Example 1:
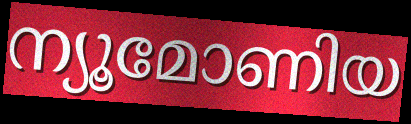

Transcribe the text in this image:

ന്യൂമോണിയ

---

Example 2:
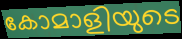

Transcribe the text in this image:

കോമാളിയുടെ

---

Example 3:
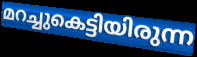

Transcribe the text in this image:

മറച്ചുകെട്ടിയിരുന്ന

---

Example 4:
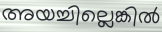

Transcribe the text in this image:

അയച്ചില്ലെങ്കിൽ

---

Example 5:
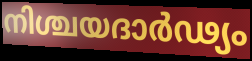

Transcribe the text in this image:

നിശ്ചയദാർഢ്യം